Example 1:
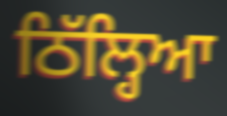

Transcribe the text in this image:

ਠਿੱਲ੍ਹਿਆ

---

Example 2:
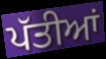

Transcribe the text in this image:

ਪੱਤੀਆਂ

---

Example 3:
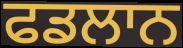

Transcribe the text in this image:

ਫਡਲਾਨ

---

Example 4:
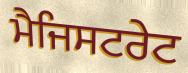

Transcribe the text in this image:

ਮੈਜਿਸਟਰੇਟ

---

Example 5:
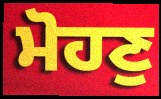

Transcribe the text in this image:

ਮੋਹਣੁ